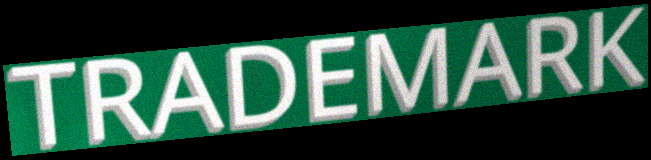
TRADEMARK